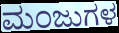
ಮಂಜುಗಳ